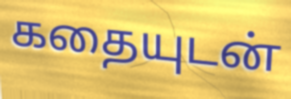
கதையுடன்